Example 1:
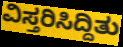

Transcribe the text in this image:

ವಿಸ್ತರಿಸಿದ್ದಿತು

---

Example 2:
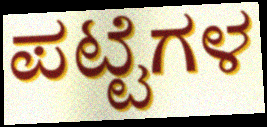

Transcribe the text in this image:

ಪಟ್ಟೆಗಳ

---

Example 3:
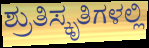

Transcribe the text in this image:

ಶ್ರುತಿಸ್ಕೃತಿಗಳಲ್ಲಿ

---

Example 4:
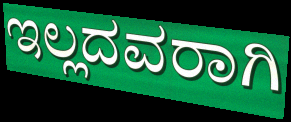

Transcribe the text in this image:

ಇಲ್ಲದವರಾಗಿ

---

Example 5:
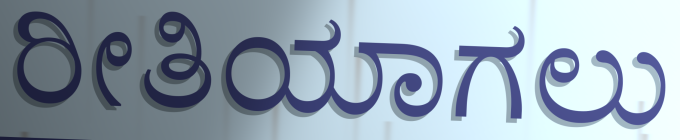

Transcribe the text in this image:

ರೀತಿಯಾಗಲು